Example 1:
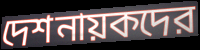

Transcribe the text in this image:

দেশনায়কদের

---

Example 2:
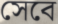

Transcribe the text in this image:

সেবে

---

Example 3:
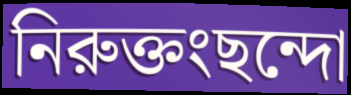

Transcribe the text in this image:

নিরুক্তংছন্দো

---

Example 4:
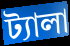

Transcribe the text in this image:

ট্যালা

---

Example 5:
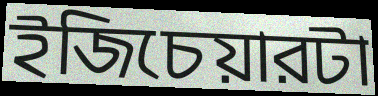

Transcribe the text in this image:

ইজিচেয়ারটা